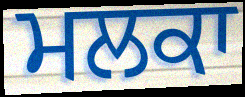
ਮਲਕਾ